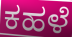
ಕಹಳೆ